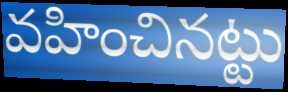
వహించినట్టు